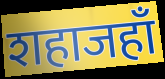
शहाजहाँ